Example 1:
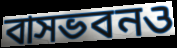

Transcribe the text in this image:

বাসভবনও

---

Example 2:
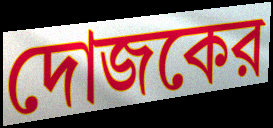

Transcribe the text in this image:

দোজকের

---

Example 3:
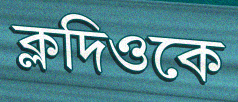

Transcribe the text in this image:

ক্লদিওকে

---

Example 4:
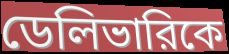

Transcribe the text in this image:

ডেলিভারিকে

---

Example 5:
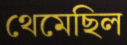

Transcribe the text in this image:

থেমেছিল